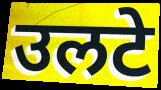
उलटे